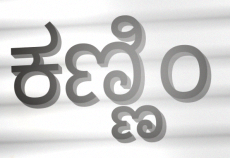
ಕಣ್ಣಿಂ